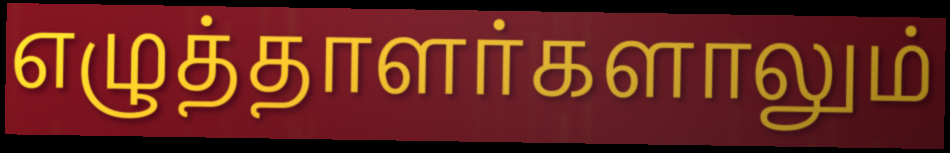
எழுத்தாளர்களாலும்